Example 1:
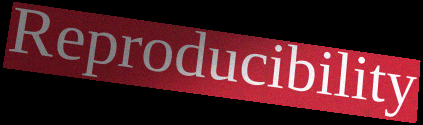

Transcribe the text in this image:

Reproducibility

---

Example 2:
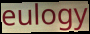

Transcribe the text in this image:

eulogy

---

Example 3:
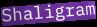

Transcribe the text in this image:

Shaligram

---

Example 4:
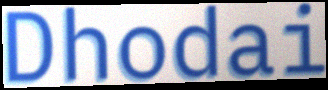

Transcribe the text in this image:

Dhodai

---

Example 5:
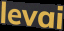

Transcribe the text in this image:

levai